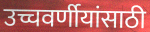
उच्चवर्णीयांसाठी